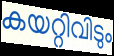
കയറ്റിവിടും